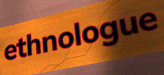
ethnologue